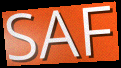
SAF